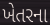
ખેતરના